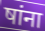
षांना